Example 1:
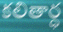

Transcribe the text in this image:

కలితార్ధ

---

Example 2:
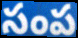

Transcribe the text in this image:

సంప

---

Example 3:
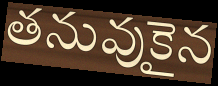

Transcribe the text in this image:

తనువుకైన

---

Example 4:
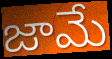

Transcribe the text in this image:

జామే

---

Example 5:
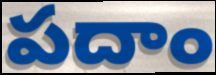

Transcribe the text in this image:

పదాం